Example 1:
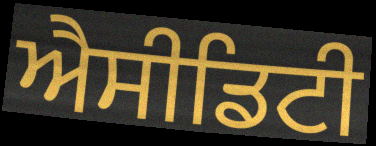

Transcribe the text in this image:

ਐਸੀਡਿਟੀ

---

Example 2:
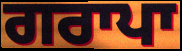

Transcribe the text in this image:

ਗਰਾਪਾ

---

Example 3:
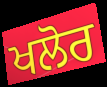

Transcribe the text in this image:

ਖਲੋਰ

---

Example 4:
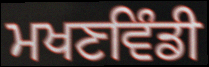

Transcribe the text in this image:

ਮਖਣਵਿੰਡੀ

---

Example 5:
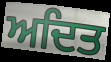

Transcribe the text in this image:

ਅਦਿਤ